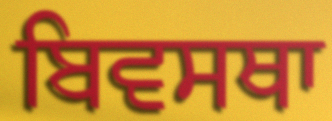
ਬਿਵਸਥਾ